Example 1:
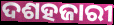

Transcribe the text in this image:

ଦଶହଜାରୀ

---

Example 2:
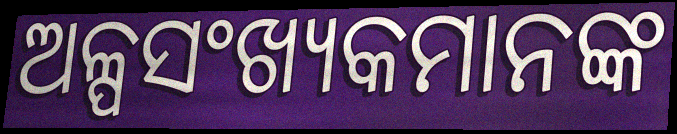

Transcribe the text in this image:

ଅଳ୍ପସଂଖ୍ୟକମାନଙ୍କ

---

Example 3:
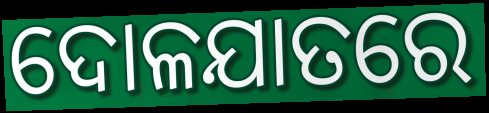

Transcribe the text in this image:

ଦୋଳଯାତରେ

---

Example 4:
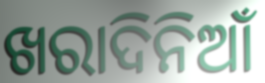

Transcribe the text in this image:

ଖରାଦିନିଆଁ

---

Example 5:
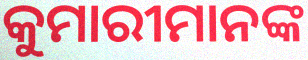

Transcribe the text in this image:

କୁମାରୀମାନଙ୍କ